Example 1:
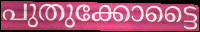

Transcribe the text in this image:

പുതുക്കോട്ടൈ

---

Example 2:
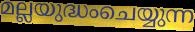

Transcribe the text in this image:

മല്ലയുദ്ധംചെയ്യുന്ന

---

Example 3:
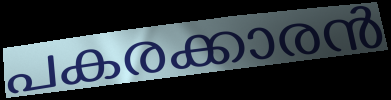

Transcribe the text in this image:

പകരക്കാരൻ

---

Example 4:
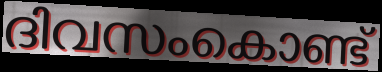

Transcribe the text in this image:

ദിവസംകൊണ്ട്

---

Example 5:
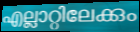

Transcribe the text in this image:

എല്ലാറ്റിലേക്കും